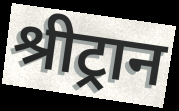
श्रीट्रान